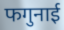
फगुनाई